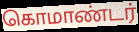
கொமாண்டர்